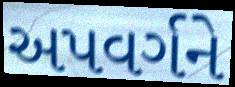
અપવર્ગને